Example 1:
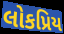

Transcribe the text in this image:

લોકપ્રિય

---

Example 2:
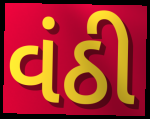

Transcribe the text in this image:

વંઠી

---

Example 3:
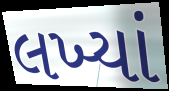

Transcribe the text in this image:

લખ્યાં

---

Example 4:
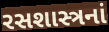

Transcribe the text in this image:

રસશાસ્ત્રનાં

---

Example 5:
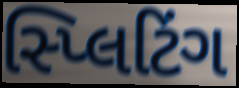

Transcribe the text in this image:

સ્પ્લિટિંગ